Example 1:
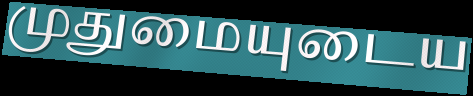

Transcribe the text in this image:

முதுமையுடைய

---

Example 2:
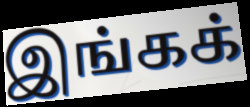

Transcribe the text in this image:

இங்கக்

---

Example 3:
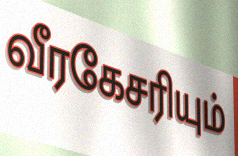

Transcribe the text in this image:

வீரகேசரியும்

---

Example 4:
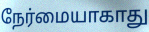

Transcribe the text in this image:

நேர்மையாகாது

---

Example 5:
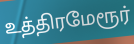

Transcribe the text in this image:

உத்திரமேரூர்